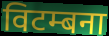
विटम्बना